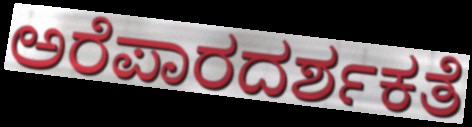
ಅರೆಪಾರದರ್ಶಕತೆ